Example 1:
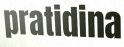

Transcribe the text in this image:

pratidina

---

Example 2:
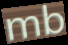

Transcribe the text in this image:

mb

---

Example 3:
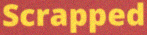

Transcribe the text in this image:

Scrapped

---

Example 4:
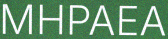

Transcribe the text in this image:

MHPAEA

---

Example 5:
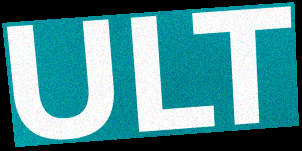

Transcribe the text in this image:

ULT